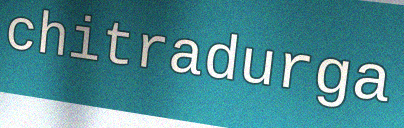
chitradurga